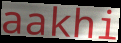
aakhi